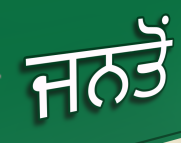
ਜਨਤੋਂ